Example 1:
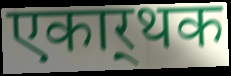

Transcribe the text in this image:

एकार्थक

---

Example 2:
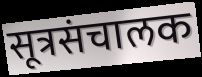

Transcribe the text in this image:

सूत्रसंचालक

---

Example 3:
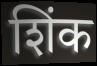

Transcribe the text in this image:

शिंक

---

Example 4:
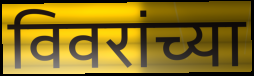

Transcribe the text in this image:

विवरांच्या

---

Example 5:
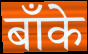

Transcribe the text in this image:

बाँके